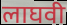
लाघवी